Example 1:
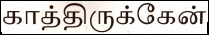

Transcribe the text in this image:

காத்திருக்கேன்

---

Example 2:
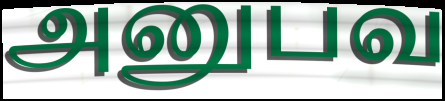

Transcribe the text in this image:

அனுபவ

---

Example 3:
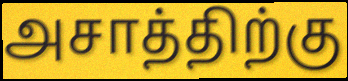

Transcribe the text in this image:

அசாத்திற்கு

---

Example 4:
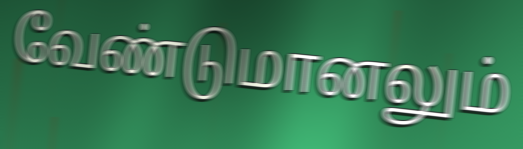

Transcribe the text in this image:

வேண்டுமானலும்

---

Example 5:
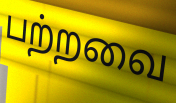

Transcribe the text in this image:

பற்றவை